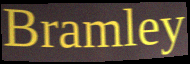
Bramley